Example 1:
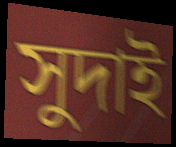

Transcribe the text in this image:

সুদাই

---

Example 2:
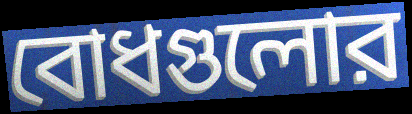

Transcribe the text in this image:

বোধগুলোর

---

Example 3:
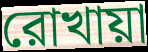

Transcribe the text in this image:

রোখায়া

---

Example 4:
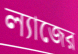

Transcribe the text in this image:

ল্যাজের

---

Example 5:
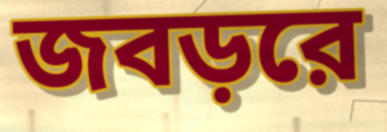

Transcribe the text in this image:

জবড়রে